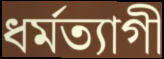
ধর্মত্যাগী